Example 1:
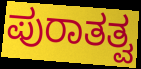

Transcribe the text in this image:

ಪುರಾತತ್ವ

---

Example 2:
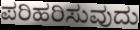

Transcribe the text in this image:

ಪರಿಹರಿಸುವುದು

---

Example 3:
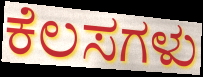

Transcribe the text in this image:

ಕೆಲಸಗಳು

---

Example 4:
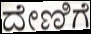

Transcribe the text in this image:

ದೇಣಿಗೆ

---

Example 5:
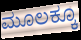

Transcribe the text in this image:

ಮೂಲಕ್ಕೂ